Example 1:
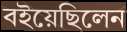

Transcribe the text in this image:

বইয়েছিলেন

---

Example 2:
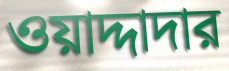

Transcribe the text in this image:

ওয়াদ্দাদার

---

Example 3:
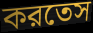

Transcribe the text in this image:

করতেস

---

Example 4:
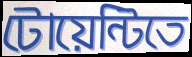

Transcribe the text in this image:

টোয়েন্টিতে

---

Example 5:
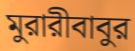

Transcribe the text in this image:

মুরারীবাবুর